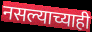
नसल्याच्याही